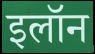
इलॉन